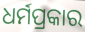
ଧର୍ମପ୍ରକାର